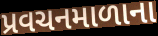
પ્રવચનમાળાના